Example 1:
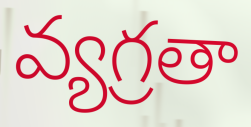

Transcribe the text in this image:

వ్యగ్రతా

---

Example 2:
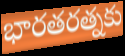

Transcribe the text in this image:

భారతరత్నకు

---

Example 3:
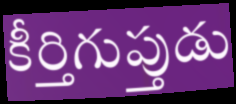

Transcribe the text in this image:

కీర్తిగుప్తుడు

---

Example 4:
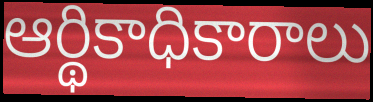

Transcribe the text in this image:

ఆర్థికాధికారాలు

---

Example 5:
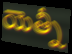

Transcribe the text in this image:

యెత్నీ